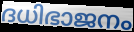
ദധിഭാജനം